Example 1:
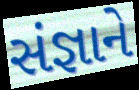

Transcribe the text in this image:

સંજ્ઞાને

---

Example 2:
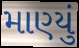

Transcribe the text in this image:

માણ્યું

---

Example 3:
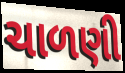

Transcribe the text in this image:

ચાળણી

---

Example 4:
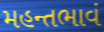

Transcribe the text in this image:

મહન્તભાવં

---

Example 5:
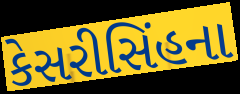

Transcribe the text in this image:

કેસરીસિંહના